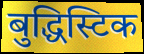
बुद्धिस्टिक